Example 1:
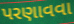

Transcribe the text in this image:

પરણાવવા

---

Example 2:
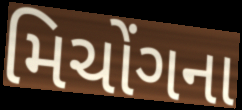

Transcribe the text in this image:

મિચોંગના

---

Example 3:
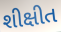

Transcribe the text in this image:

શીક્ષીત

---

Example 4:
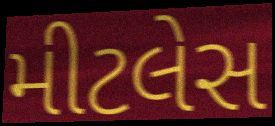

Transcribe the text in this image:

મીટલેસ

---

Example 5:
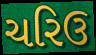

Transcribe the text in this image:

ચરિઉ